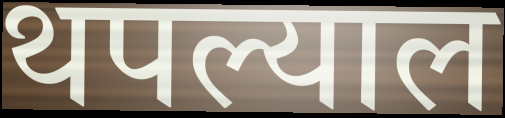
थपल्याल